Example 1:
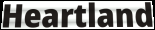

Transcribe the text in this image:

Heartland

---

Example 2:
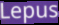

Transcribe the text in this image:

Lepus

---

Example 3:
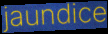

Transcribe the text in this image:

jaundice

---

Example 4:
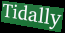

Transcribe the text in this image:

Tidally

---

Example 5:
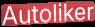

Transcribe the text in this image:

Autoliker